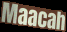
Maacah